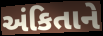
અંકિતાને